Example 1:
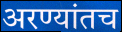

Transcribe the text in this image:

अरण्यांतच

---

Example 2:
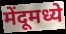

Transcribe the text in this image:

मेंदूमध्ये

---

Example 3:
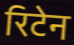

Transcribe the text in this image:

रिटेन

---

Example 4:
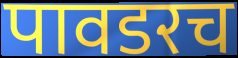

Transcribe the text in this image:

पावडरच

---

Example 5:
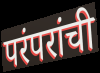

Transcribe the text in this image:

परंपरांची